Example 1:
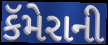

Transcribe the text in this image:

કૅમેરાની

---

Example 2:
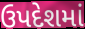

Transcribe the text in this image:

ઉપદેશમાં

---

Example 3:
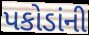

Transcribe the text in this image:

પકોડાંની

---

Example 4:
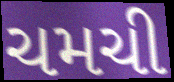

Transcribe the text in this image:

ચમચી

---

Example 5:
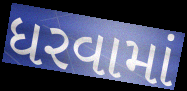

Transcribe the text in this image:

ધરવામાં